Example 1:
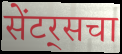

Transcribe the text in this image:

सेंटर्सचा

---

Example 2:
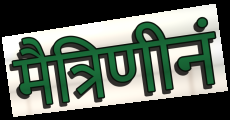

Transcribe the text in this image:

मैत्रिणीनं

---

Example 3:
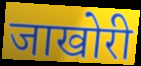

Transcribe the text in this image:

जाखोरी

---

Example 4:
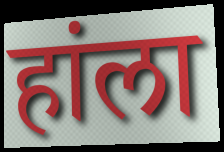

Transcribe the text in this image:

हांला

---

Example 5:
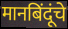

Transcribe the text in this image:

मानबिंदूंचे